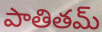
పాతితమ్